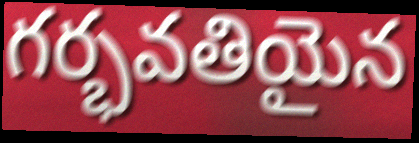
గర్భవతియైన